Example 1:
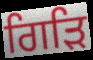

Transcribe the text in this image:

ਗਿੜਿ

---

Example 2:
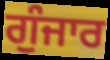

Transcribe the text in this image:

ਗੁੰਜਾਰ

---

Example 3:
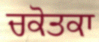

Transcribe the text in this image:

ਚਕੋਤਕਾ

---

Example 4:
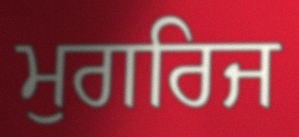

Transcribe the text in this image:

ਮੁਗਰਿਜ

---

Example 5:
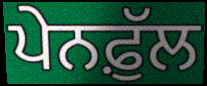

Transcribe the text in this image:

ਪੇਨਫ਼ੁੱਲ